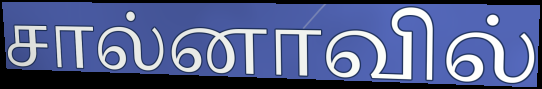
சால்னாவில்